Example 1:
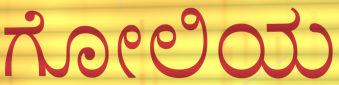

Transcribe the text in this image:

ಗೋಲಿಯ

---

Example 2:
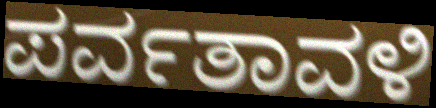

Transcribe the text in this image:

ಪರ್ವತಾವಳಿ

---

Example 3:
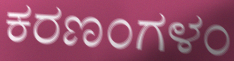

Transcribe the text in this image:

ಕರಣಂಗಳಂ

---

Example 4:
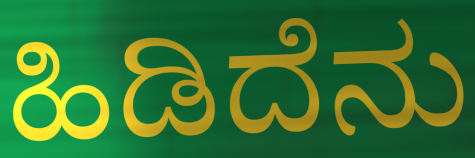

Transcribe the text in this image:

ಹಿಡಿದೆನು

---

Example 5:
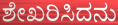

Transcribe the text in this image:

ಶೇಖರಿಸಿದನು